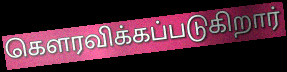
கௌரவிக்கப்படுகிறார்